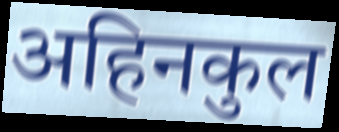
अहिनकुल